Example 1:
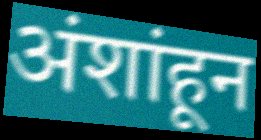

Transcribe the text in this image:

अंशांहून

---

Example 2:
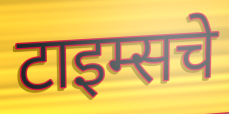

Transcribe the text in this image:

टाइम्सचे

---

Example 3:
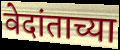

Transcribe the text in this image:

वेदांताच्या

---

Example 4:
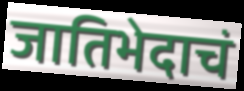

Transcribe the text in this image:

जातिभेदाचं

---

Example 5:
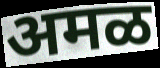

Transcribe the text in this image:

अमळ